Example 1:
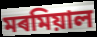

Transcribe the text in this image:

মৰমিয়াল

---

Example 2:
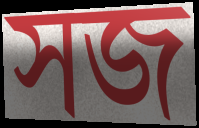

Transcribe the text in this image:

সজ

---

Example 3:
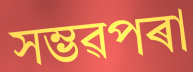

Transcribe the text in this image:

সম্ভৱপৰা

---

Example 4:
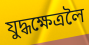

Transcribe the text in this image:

যুদ্ধক্ষেত্ৰলৈ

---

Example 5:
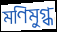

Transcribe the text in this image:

মণিমুগ্ধ